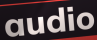
audio